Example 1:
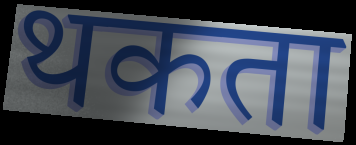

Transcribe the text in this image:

थकता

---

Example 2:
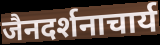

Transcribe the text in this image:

जैनदर्शनाचार्य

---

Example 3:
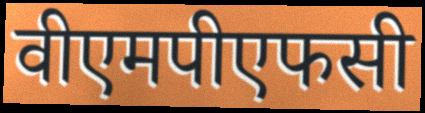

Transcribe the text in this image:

वीएमपीएफसी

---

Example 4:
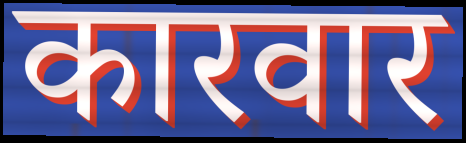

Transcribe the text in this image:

कारवार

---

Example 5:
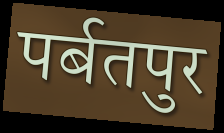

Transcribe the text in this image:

पर्बतपुर